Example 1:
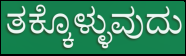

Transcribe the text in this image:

ತಕ್ಕೊಳ್ಳುವುದು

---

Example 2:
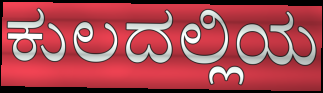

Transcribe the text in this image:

ಕುಲದಲ್ಲಿಯ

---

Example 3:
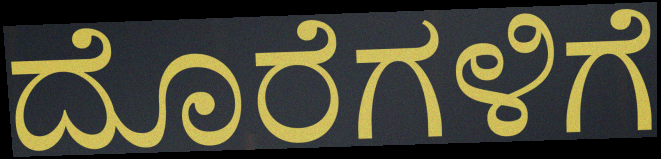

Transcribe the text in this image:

ದೊರೆಗಳಿಗೆ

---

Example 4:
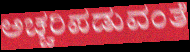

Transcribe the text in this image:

ಅಚ್ಚರಿಪಡುವಂತೆ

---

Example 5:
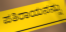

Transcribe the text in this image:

ಪತಿರಾಯನನ್ನು